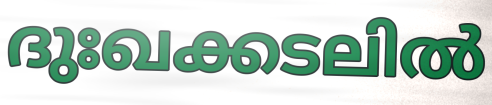
ദുഃഖക്കടലിൽ